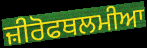
ਜ਼ੀਰੋਫਥਲਮੀਆ